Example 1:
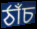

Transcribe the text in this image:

ঠাঁচ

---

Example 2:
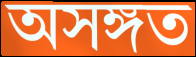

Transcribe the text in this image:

অসঙ্গত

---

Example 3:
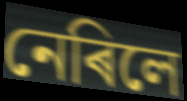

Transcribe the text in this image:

নেৰিলে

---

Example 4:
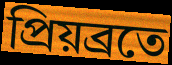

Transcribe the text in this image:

প্ৰিয়ব্ৰতে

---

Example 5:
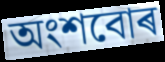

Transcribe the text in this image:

অংশবোৰ